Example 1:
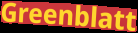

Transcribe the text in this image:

Greenblatt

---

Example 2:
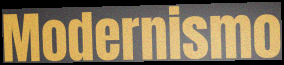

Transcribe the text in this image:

Modernismo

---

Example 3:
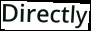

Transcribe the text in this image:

Directly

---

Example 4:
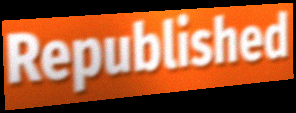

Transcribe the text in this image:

Republished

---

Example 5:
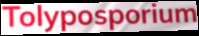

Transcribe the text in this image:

Tolyposporium